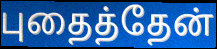
புதைத்தேன்